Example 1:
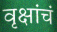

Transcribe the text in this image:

वृक्षांचं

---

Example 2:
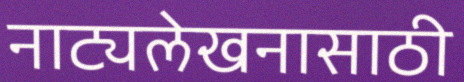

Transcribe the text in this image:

नाट्यलेखनासाठी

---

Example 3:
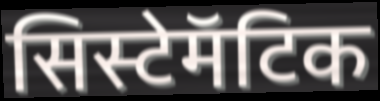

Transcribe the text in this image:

सिस्टेमॅटिक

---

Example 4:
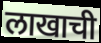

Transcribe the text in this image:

लाखाची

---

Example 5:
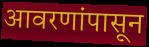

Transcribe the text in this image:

आवरणांपासून